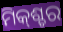
ମିକ୍‌ଶ୍ଚର